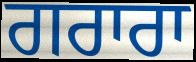
ਗਰਾਰਾ